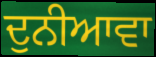
ਦੁਨੀਆਵਾ